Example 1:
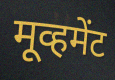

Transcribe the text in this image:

मूव्हमेंट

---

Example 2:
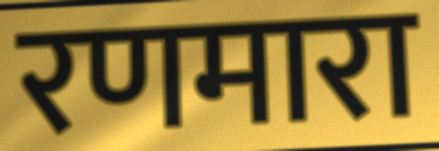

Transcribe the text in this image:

रणमारा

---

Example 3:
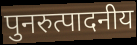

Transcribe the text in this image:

पुनरुत्पादनीय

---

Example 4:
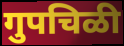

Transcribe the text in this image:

गुपचिळी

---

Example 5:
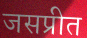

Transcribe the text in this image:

जसप्रीत